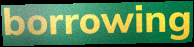
borrowing